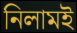
নিলামই